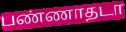
பண்ணாதடா